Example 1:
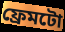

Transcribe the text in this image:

ফ্ৰেমটো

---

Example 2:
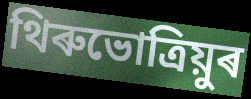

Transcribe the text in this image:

থিৰুভোত্ৰিয়ুৰ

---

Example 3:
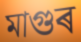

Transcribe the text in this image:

মাগুৰ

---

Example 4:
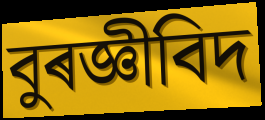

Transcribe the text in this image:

বুৰজ্ঞীবিদ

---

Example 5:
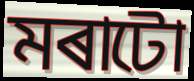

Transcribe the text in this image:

মৰাটো